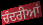
ਚੰਦਰੀਆਂ